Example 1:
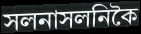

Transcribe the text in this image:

সলনাসলনিকৈ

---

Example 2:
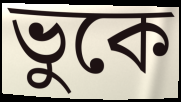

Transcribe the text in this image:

ভুকে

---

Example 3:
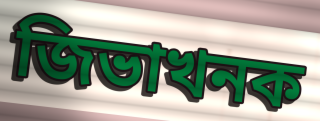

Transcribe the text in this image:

জিভাখনক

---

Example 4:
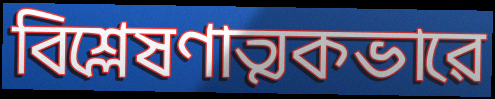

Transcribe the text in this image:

বিশ্লেষণাত্মকভাৱে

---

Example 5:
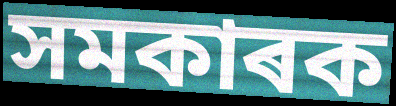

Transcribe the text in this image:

সমকাৰক